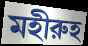
মহীরুহ